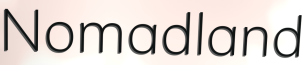
Nomadland